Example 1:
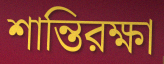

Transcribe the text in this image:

শান্তিরক্ষা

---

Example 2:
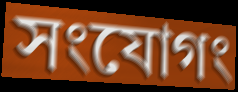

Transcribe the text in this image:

সংযোগং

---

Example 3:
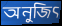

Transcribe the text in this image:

অনুজিৎ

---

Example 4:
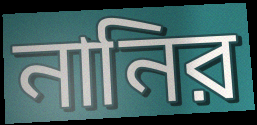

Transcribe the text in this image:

নানির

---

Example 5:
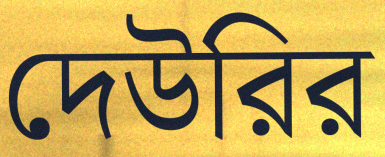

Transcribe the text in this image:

দেউরির